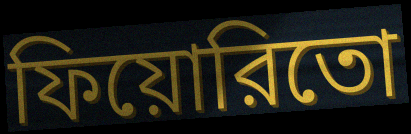
ফিয়োরিতো